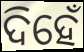
ଦିହେଁ